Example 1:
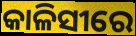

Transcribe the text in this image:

କାଳିସୀରେ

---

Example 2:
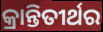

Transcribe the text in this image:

କ୍ରାନ୍ତିତୀର୍ଥର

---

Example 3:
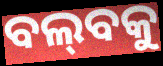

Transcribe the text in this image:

ବଲ୍‌ବକୁ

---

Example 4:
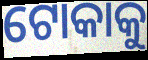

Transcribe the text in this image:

ଟୋକାକୁ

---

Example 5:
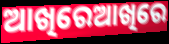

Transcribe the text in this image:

ଆଖିରେଆଖିରେ